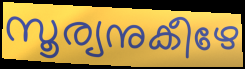
സൂര്യനുകീഴേ